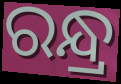
ରନ୍ଧ୍ର